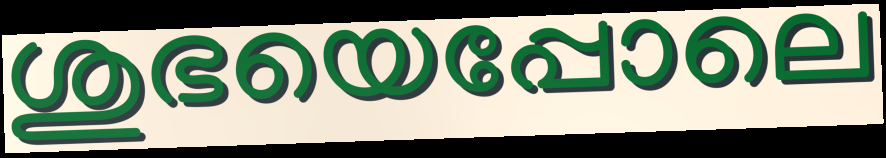
ശുഭയെപ്പോലെ